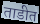
ताडीत